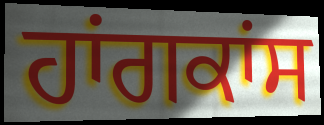
ਹਾਂਗਕਾਂਸ